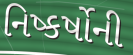
નિષ્કર્ષોની